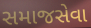
સમાજસેવા